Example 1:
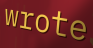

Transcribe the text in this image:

wrote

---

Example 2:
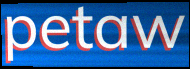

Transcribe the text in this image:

petaw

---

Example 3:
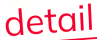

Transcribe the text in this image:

detail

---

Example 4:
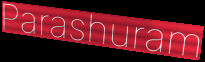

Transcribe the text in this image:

Parashuram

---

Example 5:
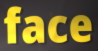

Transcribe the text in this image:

face